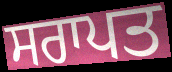
ਸਰਾਪਤ